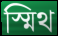
স্মিথ